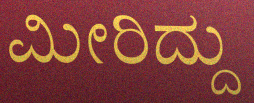
ಮೀರಿದ್ದು